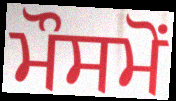
ਮੌਸਮੋਂ